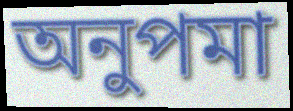
অনুপমা